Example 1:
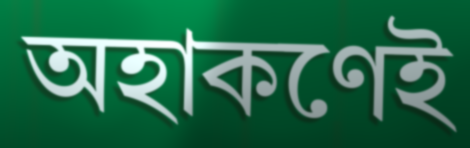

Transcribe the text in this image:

অহাকণেই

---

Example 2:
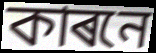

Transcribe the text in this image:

কাৰনে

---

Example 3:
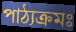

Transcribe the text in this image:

পাঠ্যক্ৰমঃ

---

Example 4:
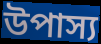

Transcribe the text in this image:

উপাস্য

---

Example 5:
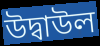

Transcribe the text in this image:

উদ্বাউল